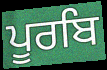
ਪੂਰਬਿ